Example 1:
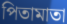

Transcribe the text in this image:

পিতামাতা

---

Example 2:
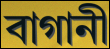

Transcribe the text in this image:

বাগানী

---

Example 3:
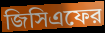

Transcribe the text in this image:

জিসিএফের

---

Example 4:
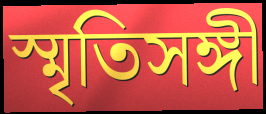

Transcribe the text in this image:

স্মৃতিসঙ্গী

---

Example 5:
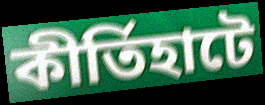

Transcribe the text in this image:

কীর্তিহাটে